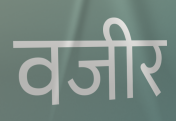
वजीर